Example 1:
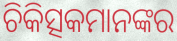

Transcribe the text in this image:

ଚିକିତ୍ସକମାନଙ୍କର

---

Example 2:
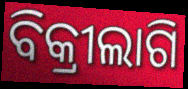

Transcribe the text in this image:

ବିକ୍ରୀଲାଗି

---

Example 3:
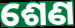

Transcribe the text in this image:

ଶେଣ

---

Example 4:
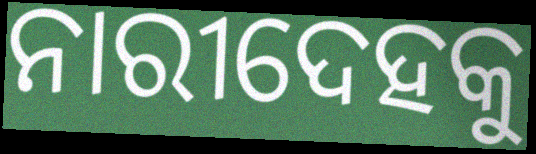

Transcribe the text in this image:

ନାରୀଦେହକୁ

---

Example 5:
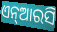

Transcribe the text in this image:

ଏନ୍ଆରସି